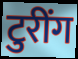
टुरींग